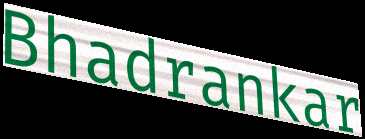
Bhadrankar